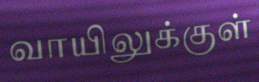
வாயிலுக்குள்